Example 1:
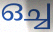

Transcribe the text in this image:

ഒച്ച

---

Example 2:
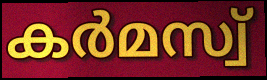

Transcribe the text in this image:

കർമസ്വ്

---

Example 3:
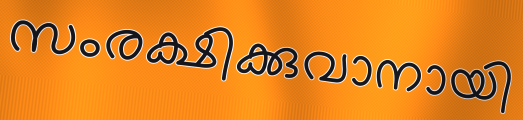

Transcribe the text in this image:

സംരക്ഷിക്കുവാനായി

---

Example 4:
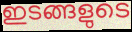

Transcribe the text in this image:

ഇടങ്ങളുടെ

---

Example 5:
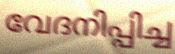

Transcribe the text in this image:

വേദനിപ്പിച്ച